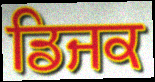
ਡਿਜਕ